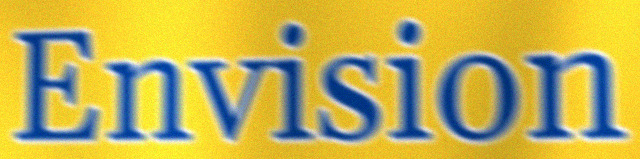
Envision